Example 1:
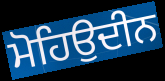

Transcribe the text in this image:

ਮੋਹਿਉਦੀਨ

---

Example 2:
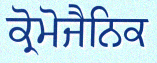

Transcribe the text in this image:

ਕ੍ਰੋਮੋਜੈਨਿਕ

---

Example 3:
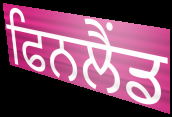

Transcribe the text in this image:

ਫਿਨਲੈਂਡ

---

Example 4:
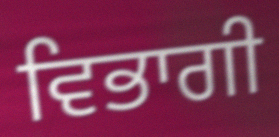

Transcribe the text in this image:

ਵਿਭਾਗੀ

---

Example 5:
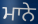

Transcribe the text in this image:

ਮਾਨੇ